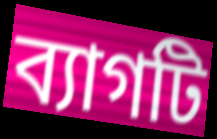
ব্যাগটি